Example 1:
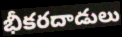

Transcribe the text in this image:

భీకరదాడులు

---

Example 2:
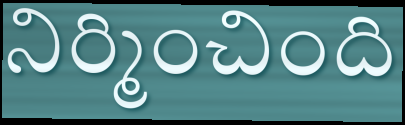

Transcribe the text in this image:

నిర్మించింది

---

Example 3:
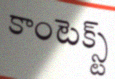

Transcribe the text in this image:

కాంటెక్స్ట్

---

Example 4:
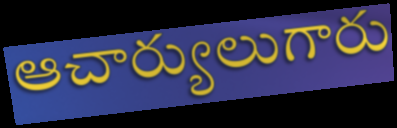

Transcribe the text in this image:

ఆచార్యులుగారు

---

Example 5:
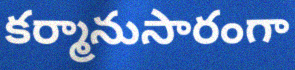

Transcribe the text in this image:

కర్మానుసారంగా